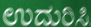
ಉದುರಿಸಿ